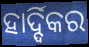
ହାର୍ଦ୍ଦିକର